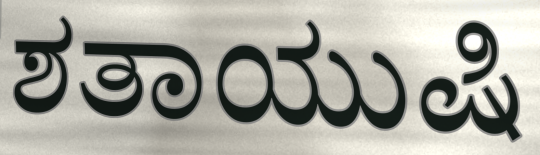
ಶತಾಯುಷಿ